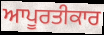
ਆਪੂਰਤੀਕਾਰ